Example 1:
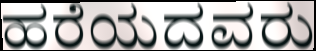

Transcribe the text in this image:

ಹರೆಯದವರು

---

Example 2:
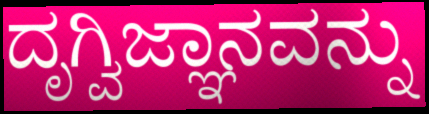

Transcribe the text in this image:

ದೃಗ್ವಿಜ್ಞಾನವನ್ನು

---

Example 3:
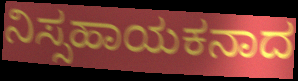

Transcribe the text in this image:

ನಿಸ್ಸಹಾಯಕನಾದ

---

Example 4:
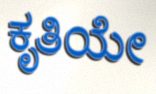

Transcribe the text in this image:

ಕೃತಿಯೇ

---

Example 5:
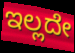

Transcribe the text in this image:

ಇಲ್ಲದೇ